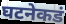
घटनेकडं